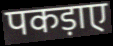
पकड़ाए